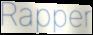
Rapper